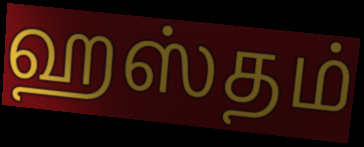
ஹஸ்தம்